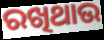
ରଖିଥାଉ